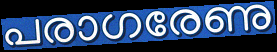
പരാഗരേണു